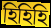
হিহিহি